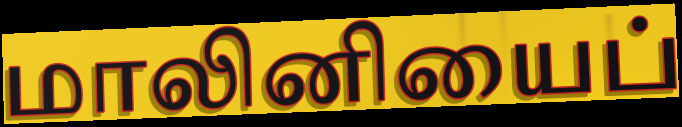
மாலினியைப்